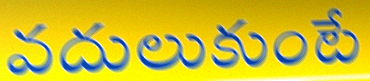
వదులుకుంటే